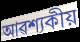
আৱশ্যকীয়